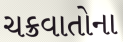
ચક્રવાતોના